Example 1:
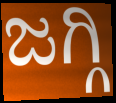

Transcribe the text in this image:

ಜಗ್ಗಿ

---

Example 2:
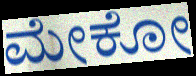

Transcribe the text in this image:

ಮೇಕೋ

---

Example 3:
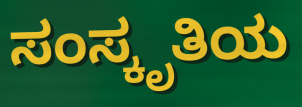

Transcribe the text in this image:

ಸಂಸ್ಕೃತಿಯ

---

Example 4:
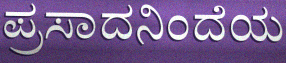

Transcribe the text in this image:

ಪ್ರಸಾದನಿಂದೆಯ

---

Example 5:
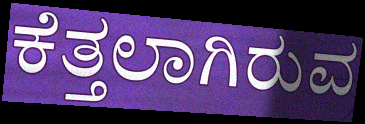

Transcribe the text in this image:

ಕೆತ್ತಲಾಗಿರುವ